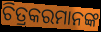
ଚିତ୍ରକରମାନଙ୍କ